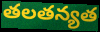
తలతన్యత